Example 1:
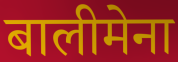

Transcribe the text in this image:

बालीमेना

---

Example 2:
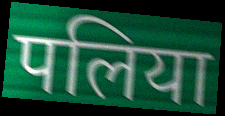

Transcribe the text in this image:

पलिया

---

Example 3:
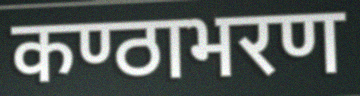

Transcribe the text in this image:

कण्ठाभरण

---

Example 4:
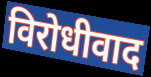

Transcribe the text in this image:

विरोधीवाद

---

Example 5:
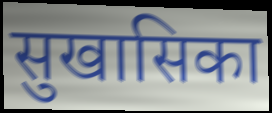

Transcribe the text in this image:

सुखासिका